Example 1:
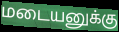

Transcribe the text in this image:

மடையனுக்கு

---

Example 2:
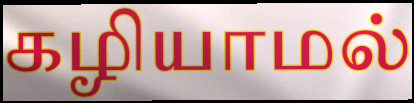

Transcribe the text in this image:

கழியாமல்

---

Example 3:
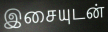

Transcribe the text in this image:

இசையுடன்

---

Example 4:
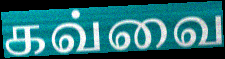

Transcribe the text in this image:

கவ்வை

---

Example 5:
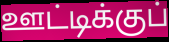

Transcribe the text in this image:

ஊட்டிக்குப்